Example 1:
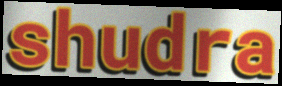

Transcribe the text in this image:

shudra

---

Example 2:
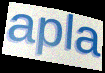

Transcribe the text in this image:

apla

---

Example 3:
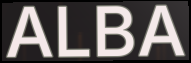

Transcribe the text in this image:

ALBA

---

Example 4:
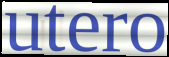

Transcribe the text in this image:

utero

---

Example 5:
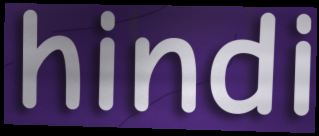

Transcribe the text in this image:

hindi